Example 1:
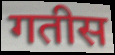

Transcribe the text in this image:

गतीस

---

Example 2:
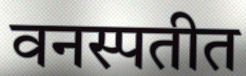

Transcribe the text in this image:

वनस्पतीत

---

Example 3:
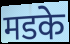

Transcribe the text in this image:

मडके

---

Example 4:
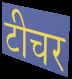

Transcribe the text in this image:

टीचर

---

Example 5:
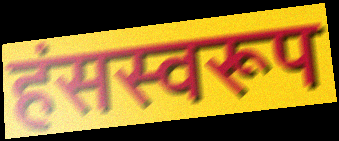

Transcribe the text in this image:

हंसस्वरूप